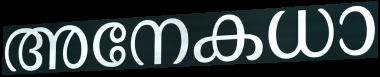
അനേകധാ